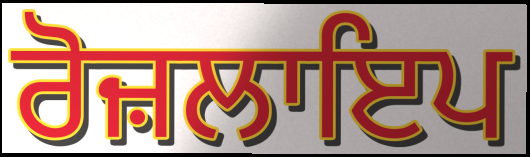
ਰੋਜ਼ਲਾਇਪ